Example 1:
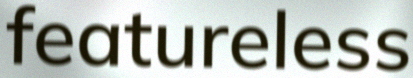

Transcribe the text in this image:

featureless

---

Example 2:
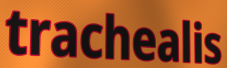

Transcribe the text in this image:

trachealis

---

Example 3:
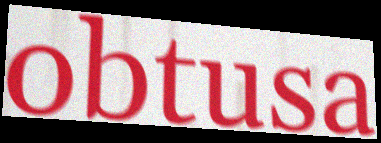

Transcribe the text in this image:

obtusa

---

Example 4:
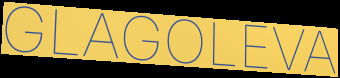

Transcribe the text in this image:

GLAGOLEVA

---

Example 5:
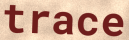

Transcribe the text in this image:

trace